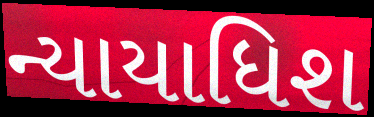
ન્યાયાધિશ